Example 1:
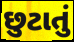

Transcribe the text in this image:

છુટાતું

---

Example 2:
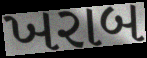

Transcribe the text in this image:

ખરાબ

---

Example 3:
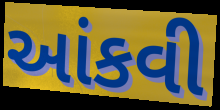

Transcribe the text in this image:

આંકવી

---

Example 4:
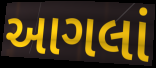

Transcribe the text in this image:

આગલાં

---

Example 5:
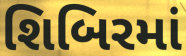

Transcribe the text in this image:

શિબિરમાં